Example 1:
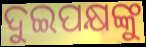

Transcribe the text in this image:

ଦୁଇପକ୍ଷଙ୍କୁ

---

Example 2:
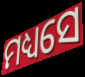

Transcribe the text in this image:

ମଧ୍ୟସେ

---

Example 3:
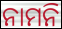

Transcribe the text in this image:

ନାମନି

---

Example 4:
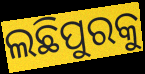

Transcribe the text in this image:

ଲଛିପୁରକୁ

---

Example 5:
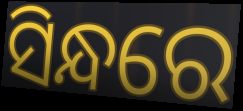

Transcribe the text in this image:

ସିନ୍ଧରେ